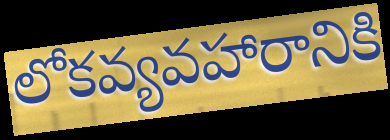
లోకవ్యవహారానికి